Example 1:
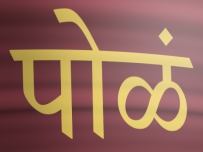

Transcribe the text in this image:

पोळं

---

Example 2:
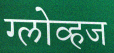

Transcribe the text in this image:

ग्लोव्हज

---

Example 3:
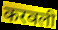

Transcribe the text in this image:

करवली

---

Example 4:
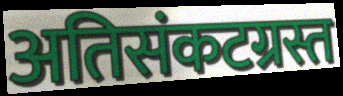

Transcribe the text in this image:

अतिसंकटग्रस्त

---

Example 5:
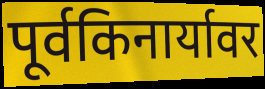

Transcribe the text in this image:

पूर्वकिनार्यावर